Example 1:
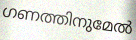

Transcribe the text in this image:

ഗണത്തിനുമേൽ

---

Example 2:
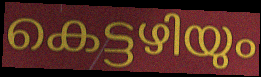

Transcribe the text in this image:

കെട്ടഴിയും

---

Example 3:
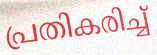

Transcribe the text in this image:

പ്രതികരിച്ച്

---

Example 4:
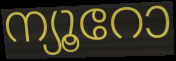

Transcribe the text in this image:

ന്യൂറോ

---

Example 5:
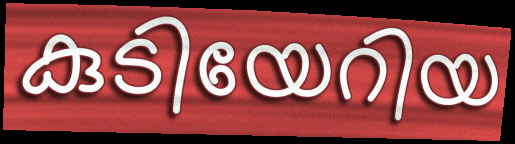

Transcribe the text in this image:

കുടിയേറിയ